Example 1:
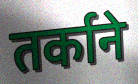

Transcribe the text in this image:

तर्काने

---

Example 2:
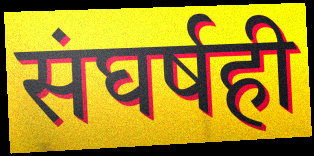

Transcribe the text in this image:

संघर्षही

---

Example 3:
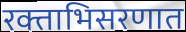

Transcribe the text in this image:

रक्ताभिसरणात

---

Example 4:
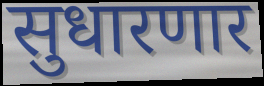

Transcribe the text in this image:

सुधारणार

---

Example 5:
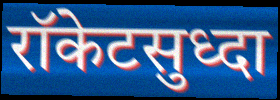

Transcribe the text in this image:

रॉकेटसुध्दा